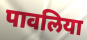
पावलिया